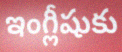
ఇంగ్లీషుకు